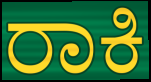
ರಾಕಿ